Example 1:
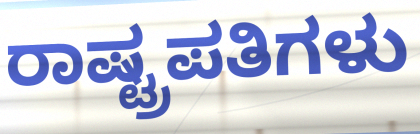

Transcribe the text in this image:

ರಾಷ್ಟ್ರಪತಿಗಳು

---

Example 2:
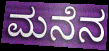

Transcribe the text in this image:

ಮನೆನ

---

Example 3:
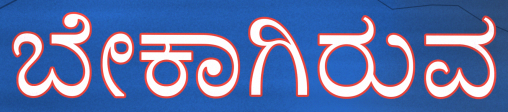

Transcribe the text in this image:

ಬೇಕಾಗಿರುವ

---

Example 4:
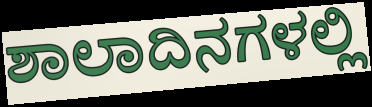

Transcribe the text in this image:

ಶಾಲಾದಿನಗಳಲ್ಲಿ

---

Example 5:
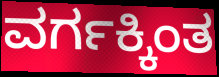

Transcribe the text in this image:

ವರ್ಗಕ್ಕಿಂತ